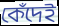
কেঁদেই